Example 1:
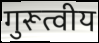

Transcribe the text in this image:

गुरूत्वीय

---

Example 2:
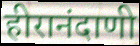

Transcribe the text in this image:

हीरानंदाणी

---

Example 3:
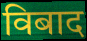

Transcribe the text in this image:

विबाद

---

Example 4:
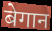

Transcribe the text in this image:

बेगान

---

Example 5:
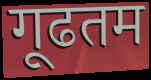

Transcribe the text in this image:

गूढतम